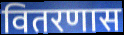
वितरणास